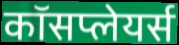
कॉसप्लेयर्स